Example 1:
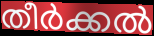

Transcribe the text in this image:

തീർക്കൽ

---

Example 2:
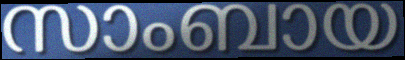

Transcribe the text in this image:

സാംബായ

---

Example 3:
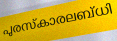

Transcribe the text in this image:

പുരസ്‌കാരലബ്ധി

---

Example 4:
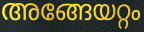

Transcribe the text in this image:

അങ്ങേയറ്റം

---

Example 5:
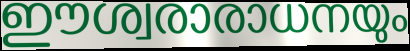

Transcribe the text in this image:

ഈശ്വരാരാധനയും